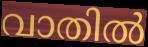
വാതിൽ